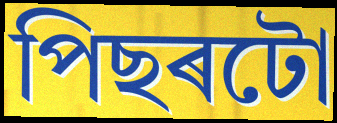
পিছৰটো